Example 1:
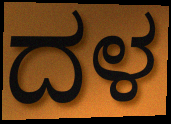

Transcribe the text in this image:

ದಳ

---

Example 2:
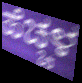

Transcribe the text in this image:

ಹೆಚ್ಚಳ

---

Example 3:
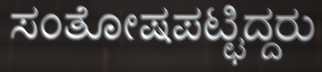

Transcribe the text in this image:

ಸಂತೋಷಪಟ್ಟಿದ್ದರು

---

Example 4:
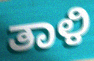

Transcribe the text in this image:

ತಾಳಿ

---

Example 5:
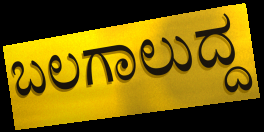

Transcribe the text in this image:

ಬಲಗಾಲುದ್ದ